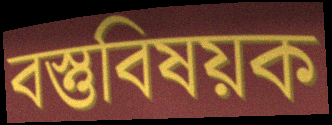
বস্তুবিষয়ক